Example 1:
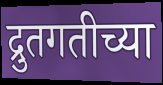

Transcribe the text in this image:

द्रुतगतीच्या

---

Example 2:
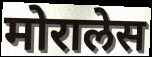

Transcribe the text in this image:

मोरालेस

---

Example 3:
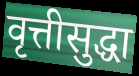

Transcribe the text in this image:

वृत्तीसुद्धा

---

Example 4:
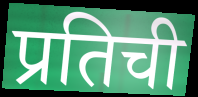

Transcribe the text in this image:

प्रतिची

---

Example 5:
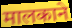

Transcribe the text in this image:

मालकाने